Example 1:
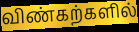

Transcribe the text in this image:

விண்கற்களில்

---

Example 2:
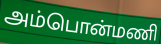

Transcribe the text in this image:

அம்பொன்மணி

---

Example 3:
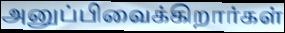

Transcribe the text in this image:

அனுப்பிவைக்கிறார்கள்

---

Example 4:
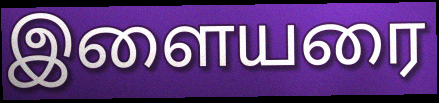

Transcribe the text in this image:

இளையரை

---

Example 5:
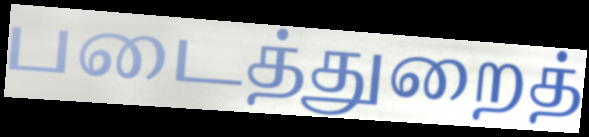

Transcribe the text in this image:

படைத்துறைத்